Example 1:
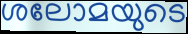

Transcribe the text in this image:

ശലോമയുടെ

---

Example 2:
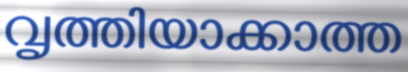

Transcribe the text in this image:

വൃത്തിയാക്കാത്ത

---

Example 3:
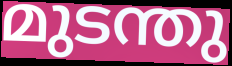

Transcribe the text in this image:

മുടന്തു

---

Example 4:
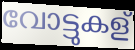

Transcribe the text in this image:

വോട്ടുകള്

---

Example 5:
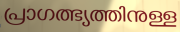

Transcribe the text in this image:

പ്രാഗത്ഭ്യത്തിനുള്ള